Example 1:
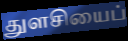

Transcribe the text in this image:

துளசியைப்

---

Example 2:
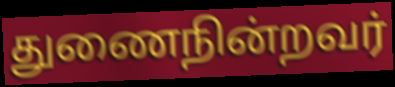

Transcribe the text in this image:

துணைநின்றவர்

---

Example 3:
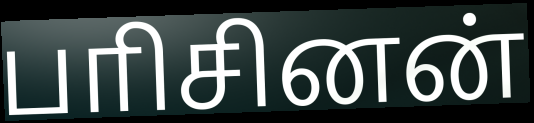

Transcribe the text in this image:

பரிசினன்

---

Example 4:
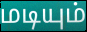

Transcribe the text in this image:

மடியும்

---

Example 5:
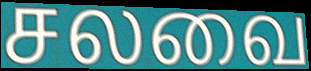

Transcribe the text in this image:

சலவை